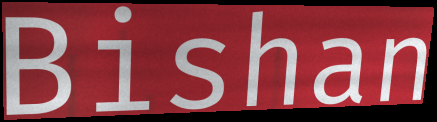
Bishan